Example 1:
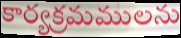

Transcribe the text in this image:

కార్యక్రమములను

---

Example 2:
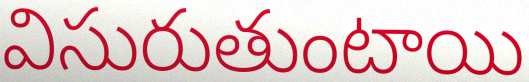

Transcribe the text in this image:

విసురుతుంటాయి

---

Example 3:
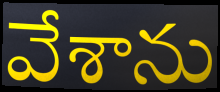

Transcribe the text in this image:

వేశాను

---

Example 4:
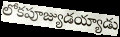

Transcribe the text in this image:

లోకపూజ్యుడయ్యాడు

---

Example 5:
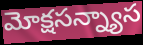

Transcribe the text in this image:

మోక్షసన్న్యాస